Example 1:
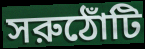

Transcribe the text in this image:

সরুঠোঁটি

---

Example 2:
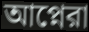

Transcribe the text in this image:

আপ্নেরা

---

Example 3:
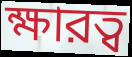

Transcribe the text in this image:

ক্ষারত্ব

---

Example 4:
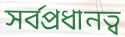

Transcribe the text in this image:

সর্বপ্রধানত্ব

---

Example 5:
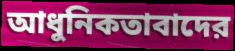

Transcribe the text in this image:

আধুনিকতাবাদের